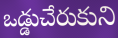
ఒడ్డుచేరుకుని